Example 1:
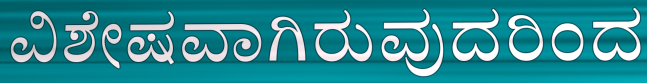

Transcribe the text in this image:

ವಿಶೇಷವಾಗಿರುವುದರಿಂದ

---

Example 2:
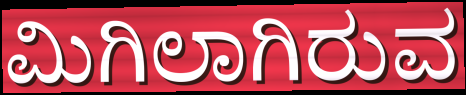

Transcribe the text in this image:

ಮಿಗಿಲಾಗಿರುವ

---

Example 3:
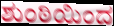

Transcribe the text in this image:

ಶುಂಠಿಯಿಂದ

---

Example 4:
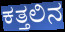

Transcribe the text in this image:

ಕತ್ತಲಿನ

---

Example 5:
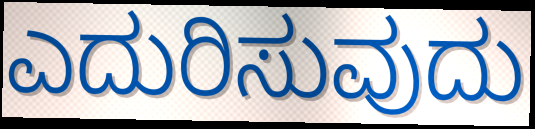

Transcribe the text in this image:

ಎದುರಿಸುವುದು